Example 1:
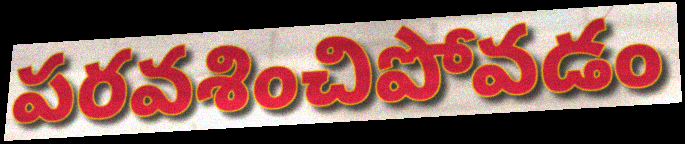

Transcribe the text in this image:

పరవశించిపోవడం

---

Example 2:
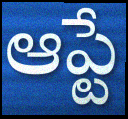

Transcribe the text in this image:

ఆప్టే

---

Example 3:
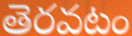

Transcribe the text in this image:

తెరవటం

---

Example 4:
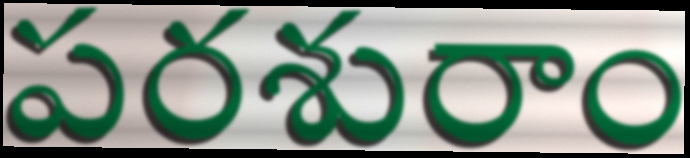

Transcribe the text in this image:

పరశురాం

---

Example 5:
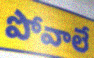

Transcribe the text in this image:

పోవాలే